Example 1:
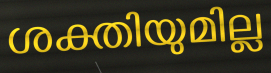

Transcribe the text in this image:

ശക്തിയുമില്ല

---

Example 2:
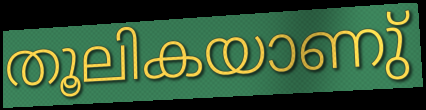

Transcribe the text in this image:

തൂലികയാണു്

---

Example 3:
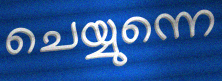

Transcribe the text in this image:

ചെയ്യുന്നെ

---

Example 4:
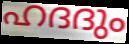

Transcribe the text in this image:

ഹദദും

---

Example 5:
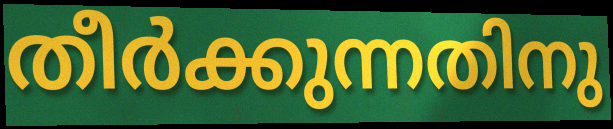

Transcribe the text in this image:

തീർക്കുന്നതിനു